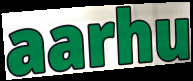
aarhu